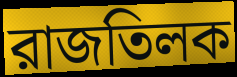
রাজতিলক